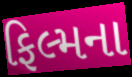
ફિલ્મના